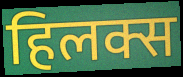
हिलक्स